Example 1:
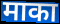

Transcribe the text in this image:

माका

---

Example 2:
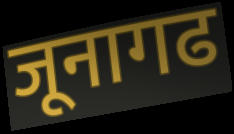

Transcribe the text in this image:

जूनागढ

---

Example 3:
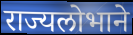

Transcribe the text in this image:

राज्यलोभाने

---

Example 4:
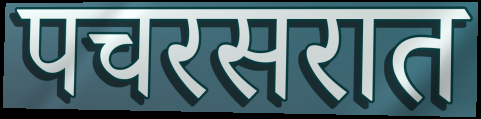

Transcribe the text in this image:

पचरसरात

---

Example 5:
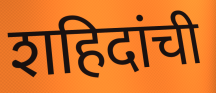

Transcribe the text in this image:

शहिदांची